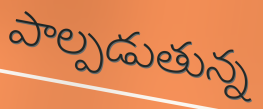
పాల్పడుతున్న